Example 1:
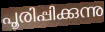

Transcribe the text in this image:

പൂരിപ്പിക്കുന്നു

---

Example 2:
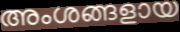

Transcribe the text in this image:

അംശങ്ങളായ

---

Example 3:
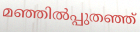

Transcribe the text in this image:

മഞ്ഞിൽപ്പുതഞ്ഞ്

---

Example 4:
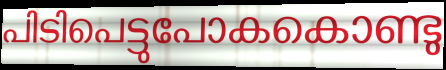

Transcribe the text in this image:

പിടിപെട്ടുപോകകൊണ്ടു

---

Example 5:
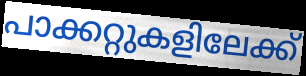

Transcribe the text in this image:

പാക്കറ്റുകളിലേക്ക്